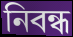
নিবন্ধ